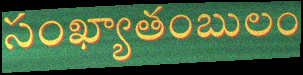
సంఖ్యాతంబులం